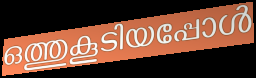
ഒത്തുകൂടിയപ്പോൾ